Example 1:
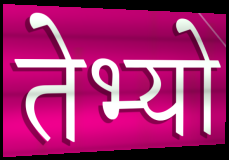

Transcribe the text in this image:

तेभ्यो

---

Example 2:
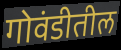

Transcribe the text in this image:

गोवंडीतील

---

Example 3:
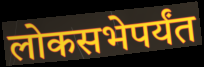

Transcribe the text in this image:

लोकसभेपर्यंत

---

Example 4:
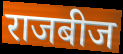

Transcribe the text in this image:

राजबीज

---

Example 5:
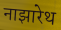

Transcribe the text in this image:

नाझारेथ